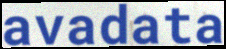
avadata